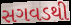
સગવડથી